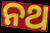
ନଥ